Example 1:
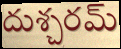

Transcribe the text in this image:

దుశ్చరమ్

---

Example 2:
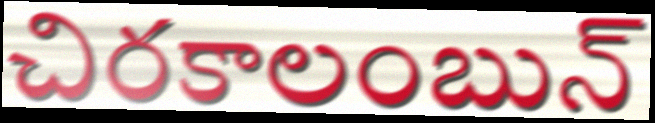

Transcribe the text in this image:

చిరకాలంబున్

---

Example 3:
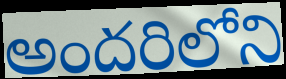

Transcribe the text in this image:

అందరిలోని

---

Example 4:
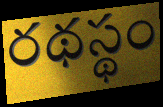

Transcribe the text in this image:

రథస్థం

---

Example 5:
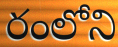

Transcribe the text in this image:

రంలోని